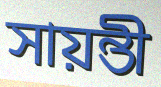
সায়ন্তী